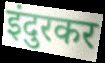
इंदुरकर